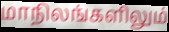
மாநிலங்களிலும்